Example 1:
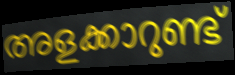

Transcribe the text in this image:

അളക്കാറുണ്ട്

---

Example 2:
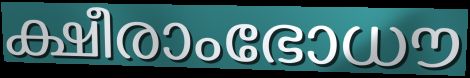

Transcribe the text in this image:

ക്ഷീരാംഭോധൗ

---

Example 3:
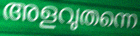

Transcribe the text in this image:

അളവുതന്നെ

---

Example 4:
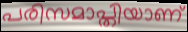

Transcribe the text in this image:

പരിസമാപ്തിയാണ്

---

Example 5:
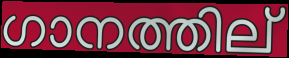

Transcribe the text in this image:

ഗാനത്തില്